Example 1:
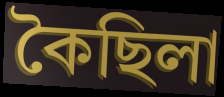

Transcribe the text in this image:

কৈছিলা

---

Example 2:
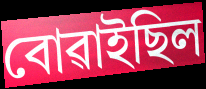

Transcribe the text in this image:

বোৱাইছিল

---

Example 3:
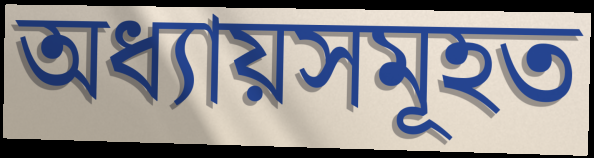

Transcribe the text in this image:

অধ্যায়সমূহত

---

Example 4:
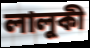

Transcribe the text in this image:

লালুকী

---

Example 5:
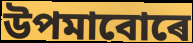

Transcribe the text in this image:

উপমাবোৰে